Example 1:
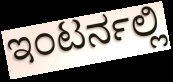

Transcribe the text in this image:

ಇಂಟರ್ನಲ್ಲಿ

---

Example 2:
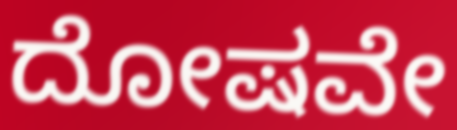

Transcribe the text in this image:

ದೋಷವೇ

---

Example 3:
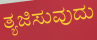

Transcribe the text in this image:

ತ್ಯಜಿಸುವುದು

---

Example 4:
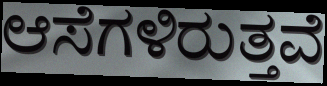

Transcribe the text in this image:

ಆಸೆಗಳಿರುತ್ತವೆ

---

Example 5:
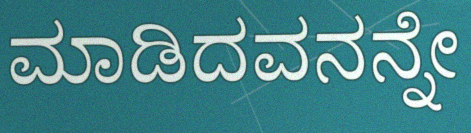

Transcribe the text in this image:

ಮಾಡಿದವನನ್ನೇ